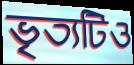
ভৃত্যটিও